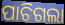
ପାଚିଗଲା